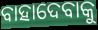
ବାହାଦେବାକୁ